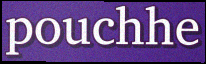
pouchhe